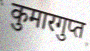
कुमारगुप्त